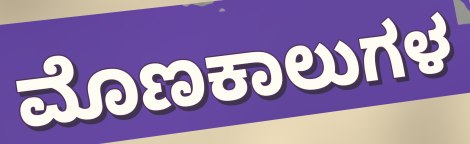
ಮೊಣಕಾಲುಗಳ